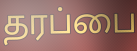
தரப்பை